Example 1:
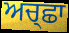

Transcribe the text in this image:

ਅਚ੍ਛਾ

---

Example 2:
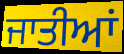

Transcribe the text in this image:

ਜਾਤੀਆਂ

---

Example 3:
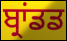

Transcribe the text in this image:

ਬ੍ਰਾਂਡਡ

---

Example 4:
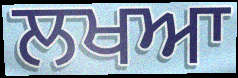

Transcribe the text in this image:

ਲਖਆ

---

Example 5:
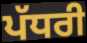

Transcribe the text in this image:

ਪੱਧਰੀ